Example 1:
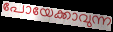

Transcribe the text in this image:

പോയേക്കാവുന്ന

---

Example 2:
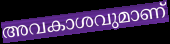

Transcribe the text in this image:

അവകാശവുമാണ്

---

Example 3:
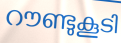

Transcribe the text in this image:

റൗണ്ടുകൂടി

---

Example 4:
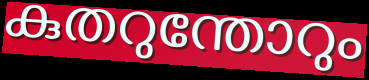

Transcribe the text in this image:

കുതറുന്തോറും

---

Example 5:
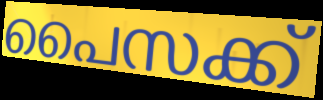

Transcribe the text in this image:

പൈസക്ക്